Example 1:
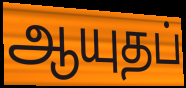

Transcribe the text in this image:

ஆயுதப்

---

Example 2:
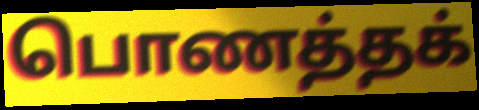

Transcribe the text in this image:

பொணத்தக்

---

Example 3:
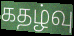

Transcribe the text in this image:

கதழ்வு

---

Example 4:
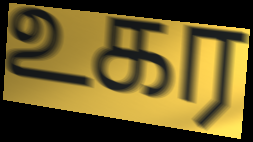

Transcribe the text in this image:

உகர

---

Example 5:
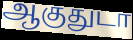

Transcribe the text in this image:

ஆகுதுடா